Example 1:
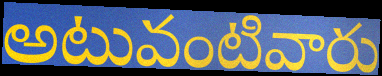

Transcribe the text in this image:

అటువంటివారు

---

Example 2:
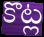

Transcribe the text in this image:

కొట్ల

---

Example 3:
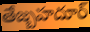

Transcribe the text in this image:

తేజ్బహదూర్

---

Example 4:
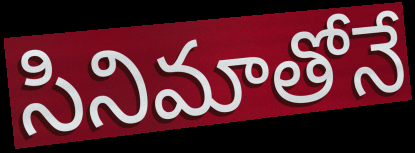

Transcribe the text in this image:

సినిమాతోనే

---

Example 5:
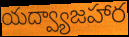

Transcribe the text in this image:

యద్వ్యాజహార